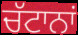
ਚੱਟਾਨਾਂ